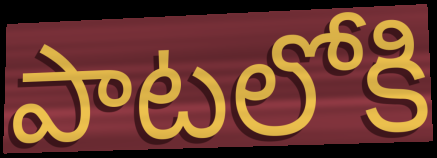
పాటలోకి